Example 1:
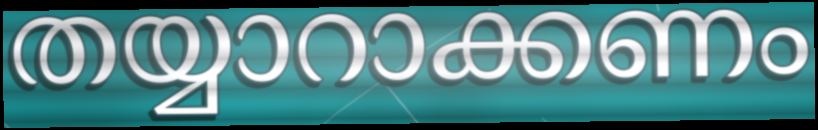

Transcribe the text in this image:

തയ്യാറാക്കണം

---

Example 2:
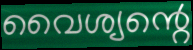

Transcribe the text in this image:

വൈശ്യന്റെ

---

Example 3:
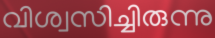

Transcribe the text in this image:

വിശ്വസിച്ചിരുന്നു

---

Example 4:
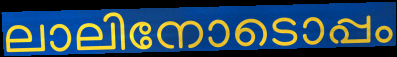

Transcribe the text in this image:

ലാലിനോടൊപ്പം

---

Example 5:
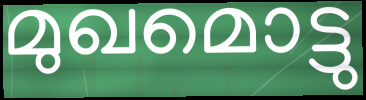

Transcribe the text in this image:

മുഖമൊട്ടു